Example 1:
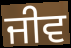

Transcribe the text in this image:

ਜੀਵ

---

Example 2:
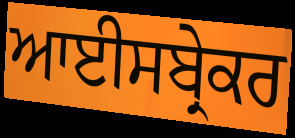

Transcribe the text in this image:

ਆਈਸਬ੍ਰੇਕਰ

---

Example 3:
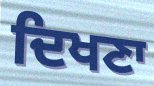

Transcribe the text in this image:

ਦਿਖਣਾ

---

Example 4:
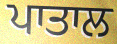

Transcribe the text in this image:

ਪਾਤਾਲ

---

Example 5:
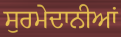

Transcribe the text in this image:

ਸੁਰਮੇਦਾਨੀਆਂ